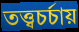
তত্ত্বচর্চায়